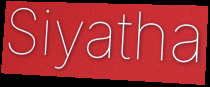
Siyatha